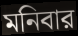
মনিবার